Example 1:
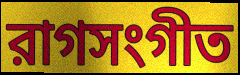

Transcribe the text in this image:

রাগসংগীত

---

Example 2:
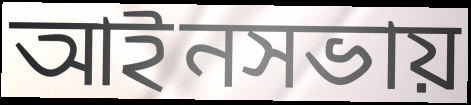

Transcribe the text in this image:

আইনসভায়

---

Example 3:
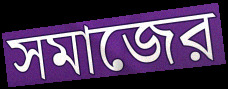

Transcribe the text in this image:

সমাজের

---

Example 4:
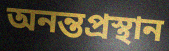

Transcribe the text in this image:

অনন্তপ্রস্থান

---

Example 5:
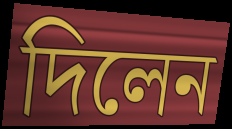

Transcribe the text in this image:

দিলেন